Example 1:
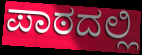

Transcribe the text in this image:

ಪಾಠದಲ್ಲಿ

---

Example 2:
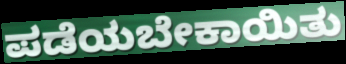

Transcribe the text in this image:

ಪಡೆಯಬೇಕಾಯಿತು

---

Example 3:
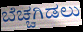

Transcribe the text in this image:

ಬೆಚ್ಚಗಿಡಲು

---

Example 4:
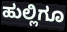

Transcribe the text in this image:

ಹುಲ್ಲಿಗೂ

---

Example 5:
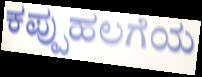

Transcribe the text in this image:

ಕಪ್ಪುಹಲಗೆಯ